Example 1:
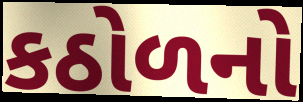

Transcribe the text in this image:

કઠોળનો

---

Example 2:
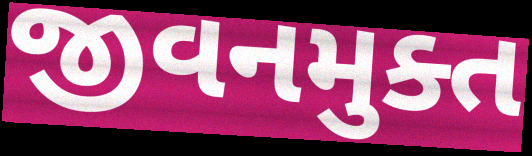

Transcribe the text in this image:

જીવનમુક્ત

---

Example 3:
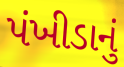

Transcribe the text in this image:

પંખીડાનું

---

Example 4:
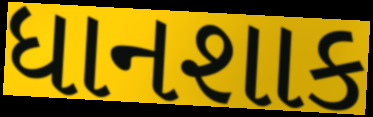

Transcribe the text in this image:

ધાનશાક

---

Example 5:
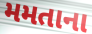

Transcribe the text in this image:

મમતાના